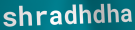
shradhdha